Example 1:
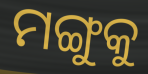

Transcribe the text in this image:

ମଙ୍ଗୁକୁ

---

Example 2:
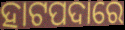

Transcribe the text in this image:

ହାଟପଦାରେ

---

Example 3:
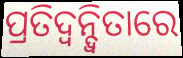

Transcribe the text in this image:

ପ୍ରତିଦ୍ୱନ୍ଦ୍ବିତାରେ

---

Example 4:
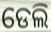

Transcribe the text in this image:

ଡେଲି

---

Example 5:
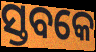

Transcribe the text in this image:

ସ୍ତବକେ